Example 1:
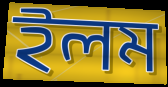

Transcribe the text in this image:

ইলম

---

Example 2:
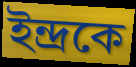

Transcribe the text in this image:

ইন্দ্রকে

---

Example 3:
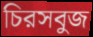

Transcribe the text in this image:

চিরসবুজ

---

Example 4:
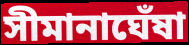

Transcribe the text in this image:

সীমানাঘেঁষা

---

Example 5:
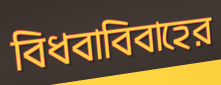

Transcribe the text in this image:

বিধবাবিবাহের